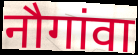
नौगांवा